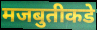
मजबुतीकडे